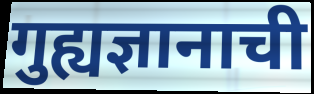
गुह्यज्ञानाची